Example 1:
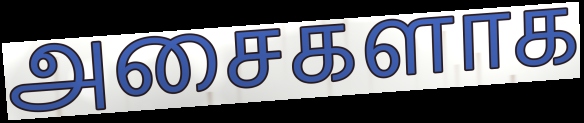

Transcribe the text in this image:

அசைகளாக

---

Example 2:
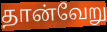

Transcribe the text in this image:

தான்வேறு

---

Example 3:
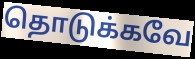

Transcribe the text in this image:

தொடுக்கவே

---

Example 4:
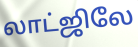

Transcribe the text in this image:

லாட்ஜிலே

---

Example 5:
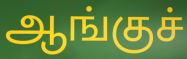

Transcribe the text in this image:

ஆங்குச்